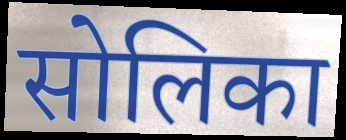
सोलिका